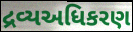
દ્રવ્યઅધિકરણ